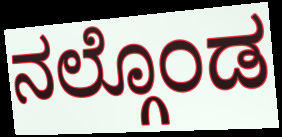
ನಲ್ಗೊಂಡ